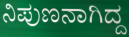
ನಿಪುಣನಾಗಿದ್ದ